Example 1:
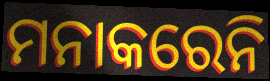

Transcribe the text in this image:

ମନାକରେନି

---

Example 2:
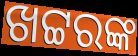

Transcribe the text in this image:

ଖଟ୍ଟରଙ୍କ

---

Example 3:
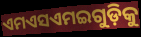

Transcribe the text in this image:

ଏମଏସଏମଇଗୁଡ଼ିକୁ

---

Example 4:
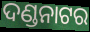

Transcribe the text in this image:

ଦଣ୍ଡନାଟର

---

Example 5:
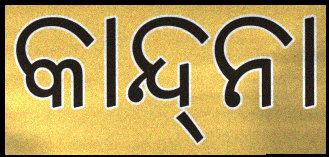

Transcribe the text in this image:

କାନ୍ଦ୍‌ନା